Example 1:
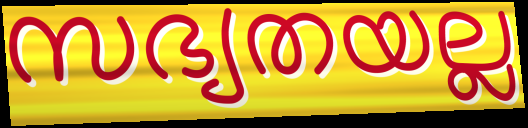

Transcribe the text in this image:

സഭ്യതയല്ല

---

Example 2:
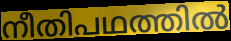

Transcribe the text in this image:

നീതിപഥത്തിൽ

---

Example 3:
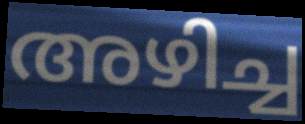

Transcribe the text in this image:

അഴിച്ച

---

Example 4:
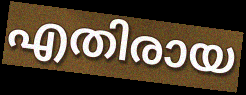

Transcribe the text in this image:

എതിരായ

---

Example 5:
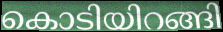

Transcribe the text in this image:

കൊടിയിറങ്ങി